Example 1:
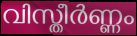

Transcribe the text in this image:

വിസ്തീർണ്ണം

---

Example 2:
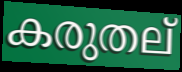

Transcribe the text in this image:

കരുതല്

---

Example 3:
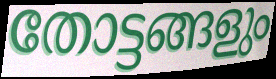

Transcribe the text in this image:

തോട്ടങ്ങളും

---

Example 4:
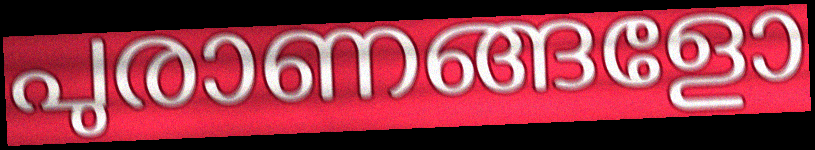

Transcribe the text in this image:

പുരാണങ്ങളോ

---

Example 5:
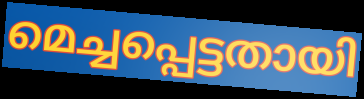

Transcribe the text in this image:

മെച്ചപ്പെട്ടതായി